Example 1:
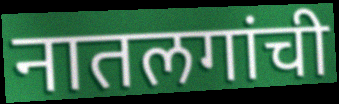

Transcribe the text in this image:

नातलगांची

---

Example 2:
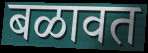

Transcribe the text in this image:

बळावत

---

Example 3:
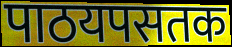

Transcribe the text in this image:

पाठयपसतक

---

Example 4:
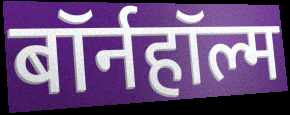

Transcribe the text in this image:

बॉर्नहॉल्म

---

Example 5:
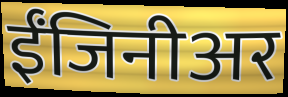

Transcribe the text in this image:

ईंजिनीअर